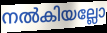
നൽകിയല്ലോ